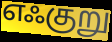
எஃகுறு